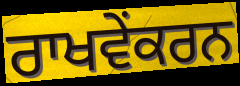
ਰਾਖਵੇਂਕਰਨ